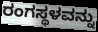
ರಂಗಸ್ಥಳವನ್ನು